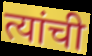
त्यांची